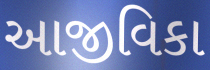
આજીવિકા